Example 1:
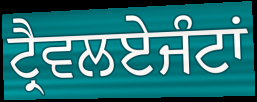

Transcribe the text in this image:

ਟ੍ਰੈਵਲਏਜੰਟਾਂ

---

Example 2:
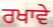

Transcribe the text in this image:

ਰਖਾਵੇ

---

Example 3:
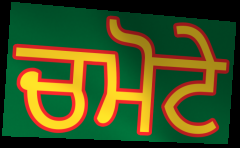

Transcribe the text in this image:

ਚਮੋਟੇ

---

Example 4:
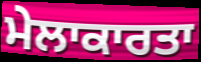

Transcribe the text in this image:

ਮੇਲਾਕਾਰਤਾ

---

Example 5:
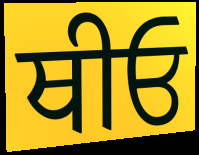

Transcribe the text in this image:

ਥੀਓ